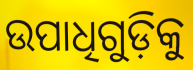
ଉପାଧିଗୁଡ଼ିକୁ